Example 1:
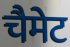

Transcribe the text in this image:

चैमेट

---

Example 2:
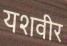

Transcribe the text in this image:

यशवीर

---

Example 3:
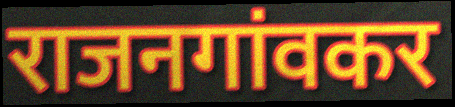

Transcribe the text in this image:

राजनगांवकर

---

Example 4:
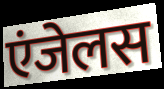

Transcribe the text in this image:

एंजेलस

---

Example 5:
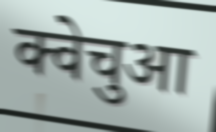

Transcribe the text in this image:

क्वेचुआ